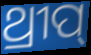
ଥ୍ରୀପ୍